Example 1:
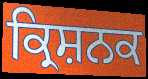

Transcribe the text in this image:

ਕ੍ਰਿਸ਼ਨਕ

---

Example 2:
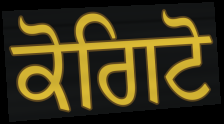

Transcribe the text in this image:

ਕੋਗਿਟੋ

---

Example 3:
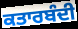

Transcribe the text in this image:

ਕਤਾਰਬੰਦੀ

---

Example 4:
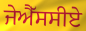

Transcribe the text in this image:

ਜੇਐੱਸਸੀਏ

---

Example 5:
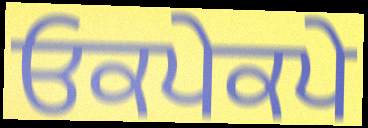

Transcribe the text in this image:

ਓਕਪੇਕਪੇ